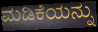
ಮಡಿಕೆಯನ್ನು